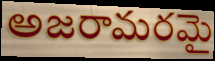
అజరామరమై